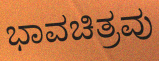
ಭಾವಚಿತ್ರವು